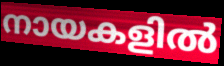
നായകളിൽ